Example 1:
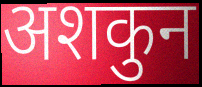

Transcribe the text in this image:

अशकुन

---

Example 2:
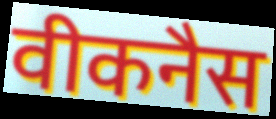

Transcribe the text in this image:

वीकनैस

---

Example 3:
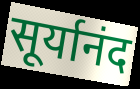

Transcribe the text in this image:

सूर्यानंद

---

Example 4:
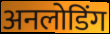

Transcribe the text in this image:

अनलोडिंग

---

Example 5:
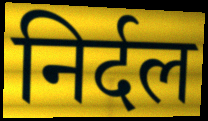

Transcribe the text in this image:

निर्दल